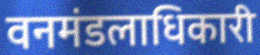
वनमंडलाधिकारी